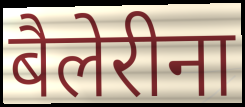
बैलेरीना